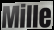
Mille